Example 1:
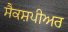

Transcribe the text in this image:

ਸੈਕਸ਼ਪੀਅਰ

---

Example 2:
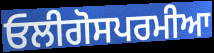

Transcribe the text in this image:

ਓਲੀਗੋਸਪਰਮੀਆ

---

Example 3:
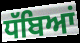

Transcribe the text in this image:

ਧੱਬਿਆਂ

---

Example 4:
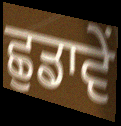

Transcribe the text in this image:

ਛੁਡਾਵੇਂ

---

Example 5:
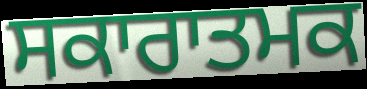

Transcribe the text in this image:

ਸਕਾਰਾਤਮਕ